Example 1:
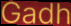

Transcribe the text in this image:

Gadh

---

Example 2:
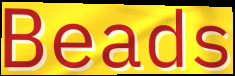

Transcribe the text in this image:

Beads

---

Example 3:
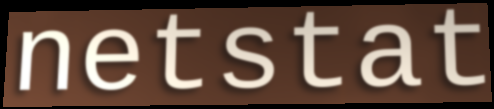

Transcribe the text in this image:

netstat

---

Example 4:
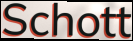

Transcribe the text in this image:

Schott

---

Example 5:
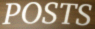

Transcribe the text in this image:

POSTS